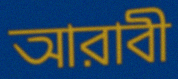
আরাবী